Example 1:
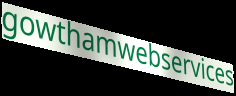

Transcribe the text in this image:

gowthamwebservices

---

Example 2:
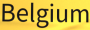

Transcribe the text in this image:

Belgium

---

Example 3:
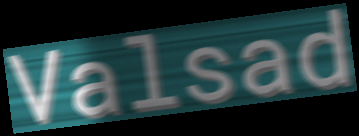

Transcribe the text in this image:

Valsad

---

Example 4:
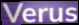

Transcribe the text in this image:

Verus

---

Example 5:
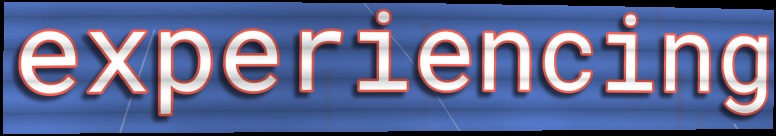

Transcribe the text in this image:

experiencing